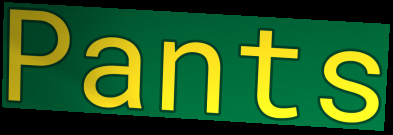
Pants